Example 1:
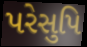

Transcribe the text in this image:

પરેસુપિ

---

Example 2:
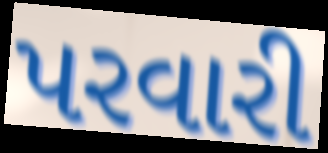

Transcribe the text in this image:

પરવારી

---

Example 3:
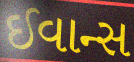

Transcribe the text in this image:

ઈવાન્સ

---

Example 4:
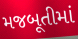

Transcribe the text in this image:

મજબૂતીમાં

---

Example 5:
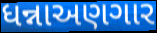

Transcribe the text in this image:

ધન્નાઅણગાર